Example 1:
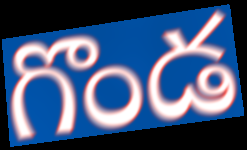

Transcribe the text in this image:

గొండ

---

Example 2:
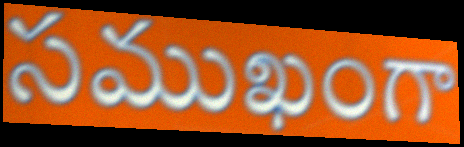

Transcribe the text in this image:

సముఖంగా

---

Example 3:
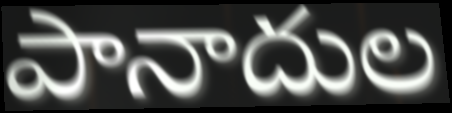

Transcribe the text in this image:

పానాదుల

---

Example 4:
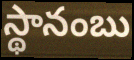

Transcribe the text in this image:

స్థానంబు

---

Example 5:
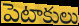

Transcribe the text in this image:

పెటాకులు